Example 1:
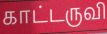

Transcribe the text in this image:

காட்டருவி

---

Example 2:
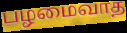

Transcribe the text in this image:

பழமைவாத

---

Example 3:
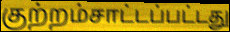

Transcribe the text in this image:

குற்றம்சாட்டப்பட்டது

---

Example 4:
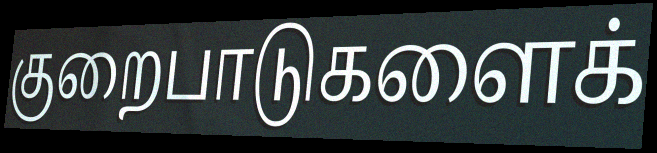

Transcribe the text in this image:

குறைபாடுகளைக்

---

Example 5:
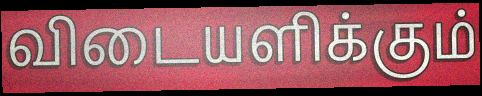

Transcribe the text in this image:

விடையளிக்கும்